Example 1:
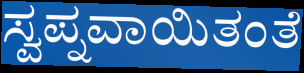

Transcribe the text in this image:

ಸ್ವಪ್ನವಾಯಿತಂತೆ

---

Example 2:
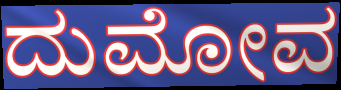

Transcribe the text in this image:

ದುಮೋವ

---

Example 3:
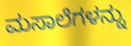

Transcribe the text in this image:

ಮಸಾಲೆಗಳನ್ನು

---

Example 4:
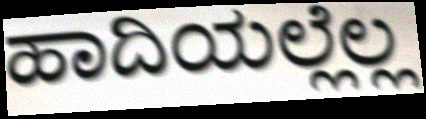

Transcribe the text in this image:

ಹಾದಿಯಲ್ಲೆಲ್ಲ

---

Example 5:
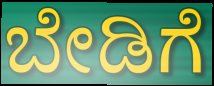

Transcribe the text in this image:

ಬೇಡಿಗೆ